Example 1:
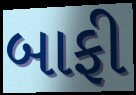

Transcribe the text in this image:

બાફી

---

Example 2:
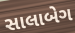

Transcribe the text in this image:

સાલાબેગ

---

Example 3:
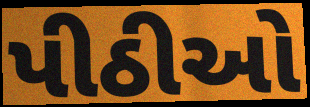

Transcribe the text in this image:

પીઠીઓ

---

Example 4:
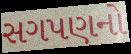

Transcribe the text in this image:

સગપણનો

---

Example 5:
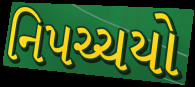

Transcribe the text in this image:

નિપચ્ચયો